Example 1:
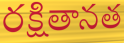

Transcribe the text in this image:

రక్షితానత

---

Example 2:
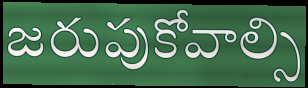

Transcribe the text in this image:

జరుపుకోవాల్సి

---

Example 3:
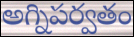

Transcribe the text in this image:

అగ్నిపర్వతం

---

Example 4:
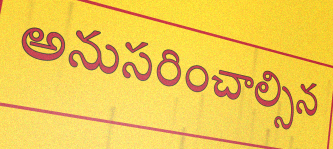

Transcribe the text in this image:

అనుసరించాల్సిన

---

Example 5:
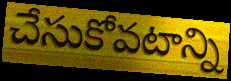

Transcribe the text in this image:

చేసుకోవటాన్ని